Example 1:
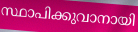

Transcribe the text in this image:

സ്ഥാപിക്കുവാനായി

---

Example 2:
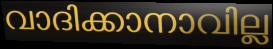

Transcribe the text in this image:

വാദിക്കാനാവില്ല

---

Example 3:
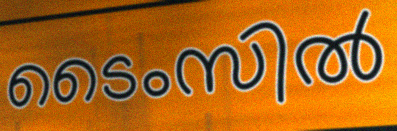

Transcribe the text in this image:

ടൈംസിൽ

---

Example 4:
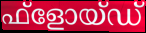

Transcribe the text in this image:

ഫ്ളോയ്ഡ്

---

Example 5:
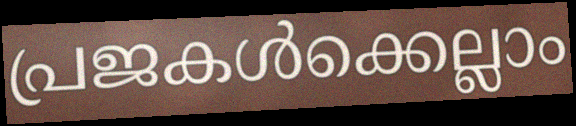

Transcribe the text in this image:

പ്രജകൾക്കെല്ലാം